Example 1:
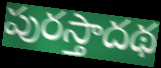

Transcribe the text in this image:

పురస్తాదథ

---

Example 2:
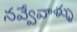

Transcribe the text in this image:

నవ్వేవాళ్ళు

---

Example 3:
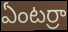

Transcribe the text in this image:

ఏంటర్రా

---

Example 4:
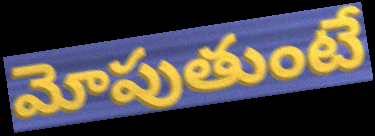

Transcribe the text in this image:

మోపుతుంటే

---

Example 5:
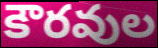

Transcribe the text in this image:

కౌరవుల